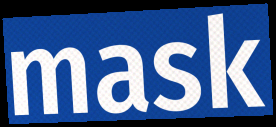
mask